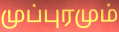
முப்புரமும்